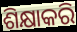
ଶିକ୍ଷାକରି